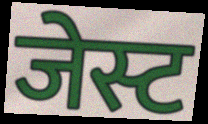
जेस्‍ट